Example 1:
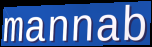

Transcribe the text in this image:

mannab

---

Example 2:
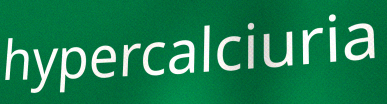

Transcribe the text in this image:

hypercalciuria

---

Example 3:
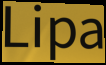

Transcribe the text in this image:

Lipa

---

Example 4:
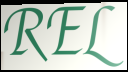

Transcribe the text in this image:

REL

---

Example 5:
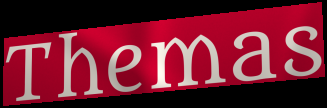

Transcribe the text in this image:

Themas